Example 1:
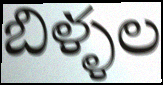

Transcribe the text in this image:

బిళ్ళల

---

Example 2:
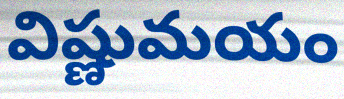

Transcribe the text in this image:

విష్ణుమయం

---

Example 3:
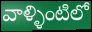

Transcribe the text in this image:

వాళ్ళింటిలో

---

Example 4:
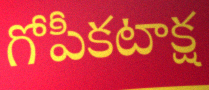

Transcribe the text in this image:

గోపీకటాక్ష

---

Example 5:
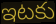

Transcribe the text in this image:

ఇటకు